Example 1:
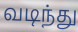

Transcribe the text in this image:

வடிந்து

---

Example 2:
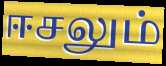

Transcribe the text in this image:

ஈசலும்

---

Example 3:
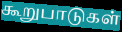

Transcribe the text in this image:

கூறுபாடுகள்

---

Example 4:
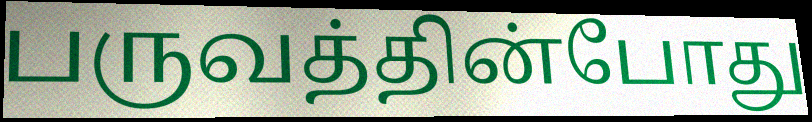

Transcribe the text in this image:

பருவத்தின்போது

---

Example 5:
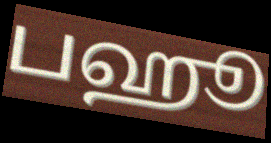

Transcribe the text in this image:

பஹூ